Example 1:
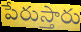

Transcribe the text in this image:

పేరుస్తారు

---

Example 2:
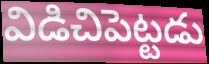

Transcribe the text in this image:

విడిచిపెట్టడు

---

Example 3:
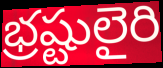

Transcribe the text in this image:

భ్రష్టులైరి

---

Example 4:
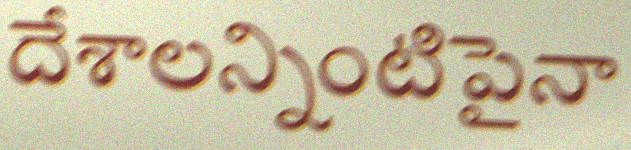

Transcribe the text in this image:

దేశాలన్నింటిపైనా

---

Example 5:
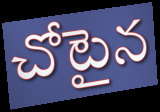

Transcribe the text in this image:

చోటైన